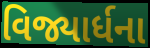
વિજ્યાર્ધના